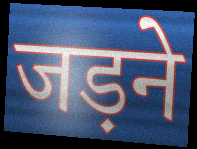
जड़ने